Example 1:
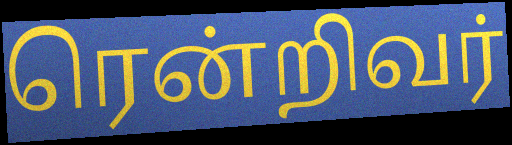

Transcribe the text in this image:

ரென்றிவர்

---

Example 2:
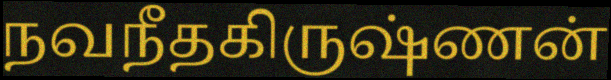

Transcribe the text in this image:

நவநீதகிருஷ்ணன்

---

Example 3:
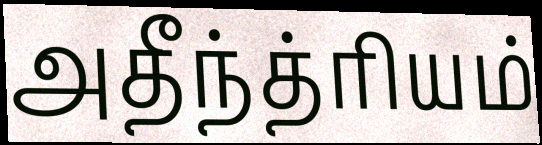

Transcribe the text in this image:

அதீந்த்ரியம்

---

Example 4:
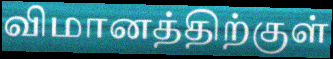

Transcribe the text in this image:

விமானத்திற்குள்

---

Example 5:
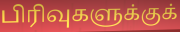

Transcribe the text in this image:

பிரிவுகளுக்குக்